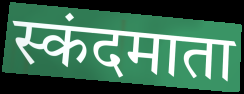
स्‍कंदमाता